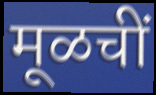
मूळचीं